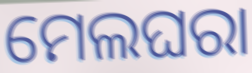
ମେଲଘରା